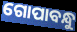
ଗୋପାବନ୍ଧୁ